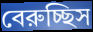
বেরুচ্ছিস